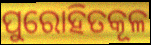
ପୁରୋହିତକୂଳ